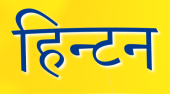
हिन्टन